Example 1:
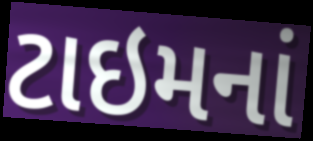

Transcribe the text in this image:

ટાઇમનાં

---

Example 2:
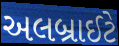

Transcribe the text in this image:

અલબ્રાઈટે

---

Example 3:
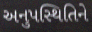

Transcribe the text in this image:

અનુપસ્થિતિને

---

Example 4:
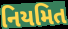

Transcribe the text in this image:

નિયમિત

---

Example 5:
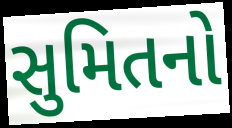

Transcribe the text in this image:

સુમિતનો